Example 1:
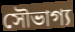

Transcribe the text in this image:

সৌভাগ্য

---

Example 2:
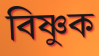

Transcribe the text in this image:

বিষ্ণুক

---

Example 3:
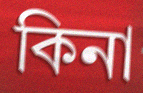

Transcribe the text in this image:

কিনা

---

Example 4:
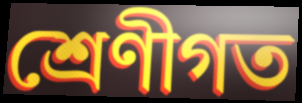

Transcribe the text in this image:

শ্ৰেণীগত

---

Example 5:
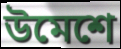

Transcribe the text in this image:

উমেশে